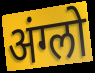
अंग्लो